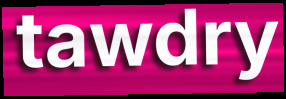
tawdry